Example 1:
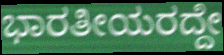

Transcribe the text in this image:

ಭಾರತೀಯರದ್ದೇ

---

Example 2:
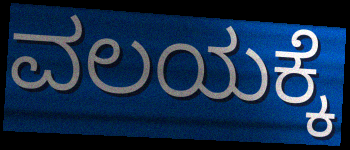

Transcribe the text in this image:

ವಲಯಕ್ಕೆ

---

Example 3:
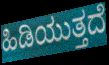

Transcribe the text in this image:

ಹಿಡಿಯುತ್ತದೆ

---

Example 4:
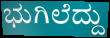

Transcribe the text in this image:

ಭುಗಿಲೆದ್ದು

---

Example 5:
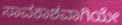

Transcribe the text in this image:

ಸಾವಕಾಶವಾಗಿಯೇ